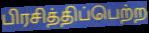
பிரசித்திப்பெற்ற